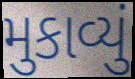
મુકાવ્યું